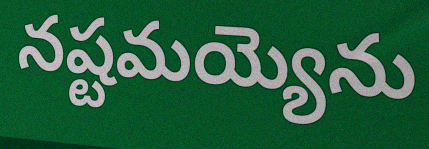
నష్టమయ్యెను